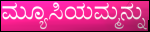
ಮ್ಯೂಸಿಯಮ್ಮನ್ನು